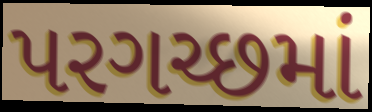
પરગચ્છમાં